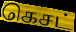
கெசட்